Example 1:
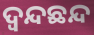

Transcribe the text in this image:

ଦ୍ୱନ୍ଦଛନ୍ଦ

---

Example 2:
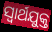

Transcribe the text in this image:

ସ୍ୱାର୍ଥଯୁକ୍ତ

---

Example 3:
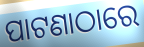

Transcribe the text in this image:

ପାଟଣାଠାରେ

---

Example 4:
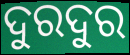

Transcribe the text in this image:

ଦୁରଦୁର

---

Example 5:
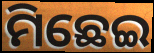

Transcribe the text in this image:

ମିଛେଇ